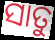
ସାତୁ